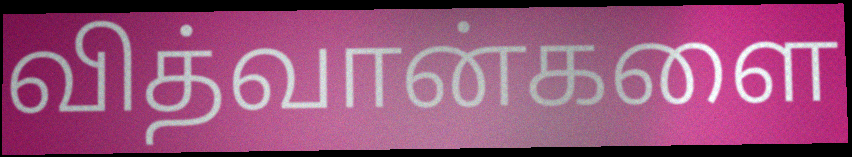
வித்வான்களை